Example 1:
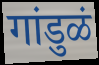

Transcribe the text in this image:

गांडुळं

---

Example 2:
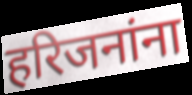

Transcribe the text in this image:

हरिजनांना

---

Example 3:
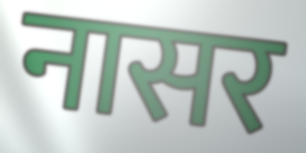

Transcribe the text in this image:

नासर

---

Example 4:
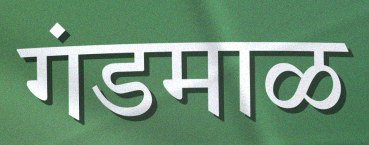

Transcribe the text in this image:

गंडमाळ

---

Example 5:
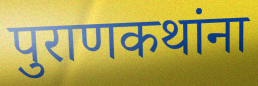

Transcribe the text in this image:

पुराणकथांना